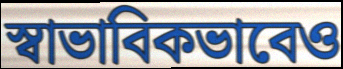
স্বাভাবিকভাবেও